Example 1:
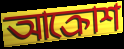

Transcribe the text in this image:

আক্রোশ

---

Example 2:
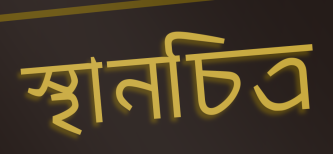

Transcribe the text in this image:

স্থানচিত্র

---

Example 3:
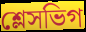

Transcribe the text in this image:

শ্লেসভিগ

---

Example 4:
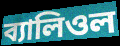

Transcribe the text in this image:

ব্যালিওল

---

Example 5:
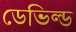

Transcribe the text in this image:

ডেভিল্ড